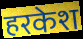
हरकेश